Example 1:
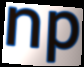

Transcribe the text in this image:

np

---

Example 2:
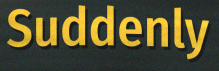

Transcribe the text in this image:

Suddenly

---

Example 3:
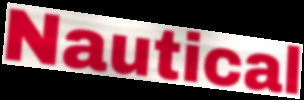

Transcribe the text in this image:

Nautical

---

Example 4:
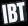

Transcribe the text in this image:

IBT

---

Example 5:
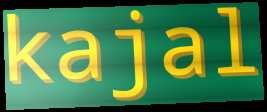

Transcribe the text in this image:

kajal